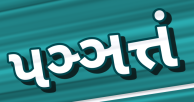
પઞ્ઞત્તં